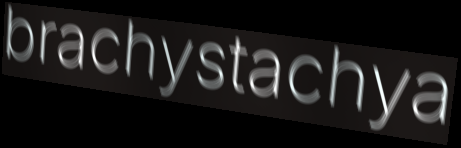
brachystachya